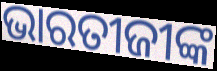
ଭାରତୀଜୀଙ୍କ